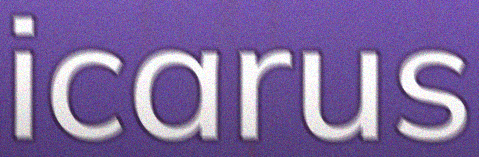
icarus